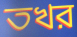
তখর